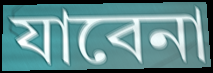
যাবেনা